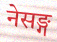
नेसङ्ग